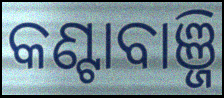
କଣ୍ଟାବାଞ୍ଜି